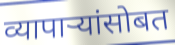
व्यापाऱ्यांसोबत